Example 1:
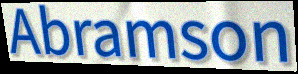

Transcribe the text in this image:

Abramson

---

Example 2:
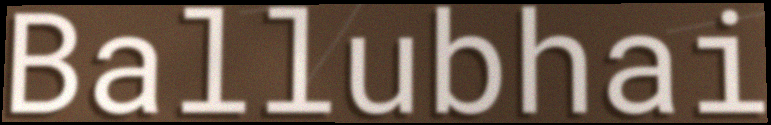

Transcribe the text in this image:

Ballubhai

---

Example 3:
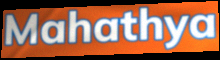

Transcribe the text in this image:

Mahathya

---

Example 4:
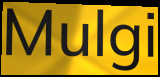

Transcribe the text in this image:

Mulgi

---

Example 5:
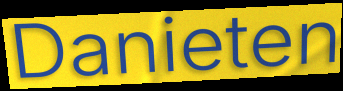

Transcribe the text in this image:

Danieten